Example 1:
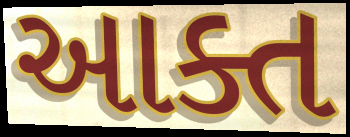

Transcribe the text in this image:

આક્ત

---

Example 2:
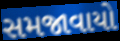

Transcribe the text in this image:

સમજાવાયો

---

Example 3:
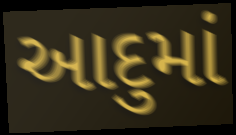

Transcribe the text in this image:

આદુમાં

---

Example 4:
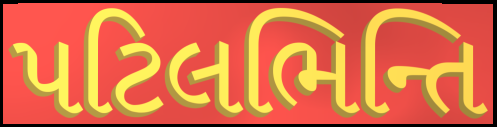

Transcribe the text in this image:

પટિલભિન્તિ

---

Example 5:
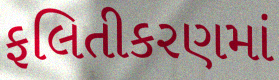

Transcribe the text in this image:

ફલિતીકરણમાં